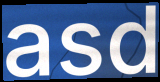
asd